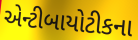
એન્ટીબાયોટીકના